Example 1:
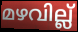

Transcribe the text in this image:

മഴവില്ല്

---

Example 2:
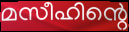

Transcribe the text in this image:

മസീഹിന്റെ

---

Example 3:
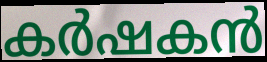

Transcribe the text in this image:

കർഷകൻ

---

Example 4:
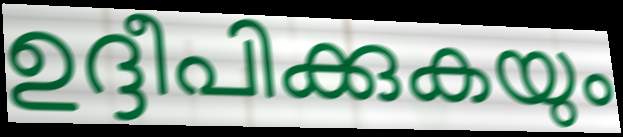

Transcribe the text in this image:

ഉദ്ദീപിക്കുകയും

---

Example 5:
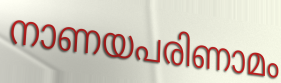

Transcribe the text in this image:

നാണയപരിണാമം